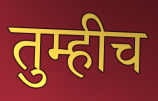
तुम्हीच